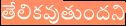
తేలికవుతుందని